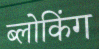
ब्लोकिंग